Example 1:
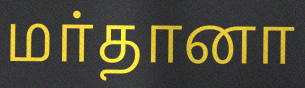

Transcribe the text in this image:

மர்தானா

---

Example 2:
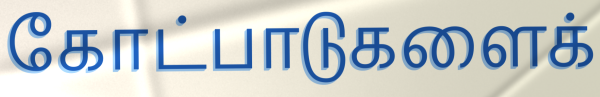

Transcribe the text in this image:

கோட்பாடுகளைக்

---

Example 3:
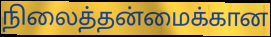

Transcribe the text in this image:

நிலைத்தன்மைக்கான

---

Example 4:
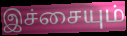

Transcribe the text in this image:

இச்சையும்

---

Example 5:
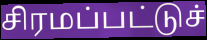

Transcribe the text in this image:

சிரமப்பட்டுச்